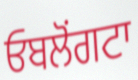
ਓਬਲੋਂਗਟਾ